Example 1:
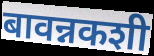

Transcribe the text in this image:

बावन्नकशी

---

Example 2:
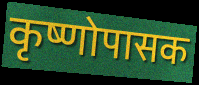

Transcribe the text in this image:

कृष्णोपासक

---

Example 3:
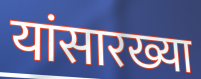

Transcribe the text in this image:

यांसारख्‍या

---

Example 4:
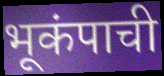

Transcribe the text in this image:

भूकंपाची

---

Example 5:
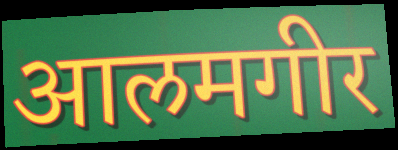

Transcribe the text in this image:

आलमगीर